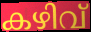
കഴിവ്